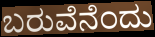
ಬರುವೆನೆಂದು